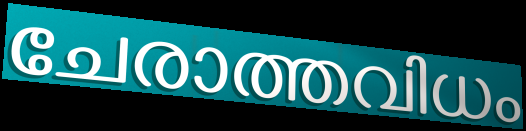
ചേരാത്തവിധം